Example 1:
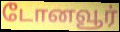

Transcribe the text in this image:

டோனவூர்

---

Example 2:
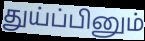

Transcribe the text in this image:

துய்ப்பினும்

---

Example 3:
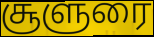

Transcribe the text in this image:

சூளுரை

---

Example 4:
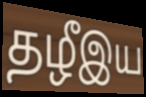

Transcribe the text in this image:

தழீஇய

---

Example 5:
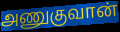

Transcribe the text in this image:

அணுகுவான்